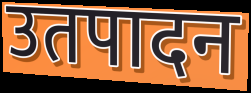
उतपादन